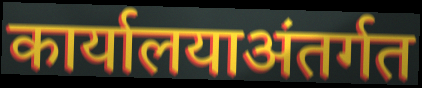
कार्यालयाअंतर्गत